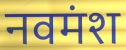
नवमंश